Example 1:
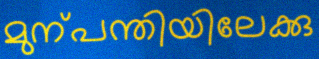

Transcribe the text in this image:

മുന്പന്തിയിലേക്കു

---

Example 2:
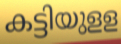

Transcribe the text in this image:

കട്ടിയുളള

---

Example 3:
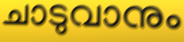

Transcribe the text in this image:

ചാടുവാനും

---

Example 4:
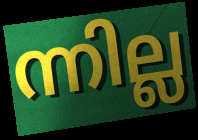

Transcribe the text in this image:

ന്നില്ല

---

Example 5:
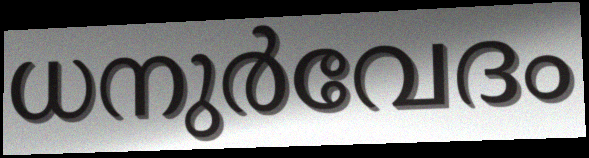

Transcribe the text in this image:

ധനുർവേദം